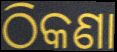
ଠିକଣା